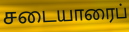
சடையாரைப்